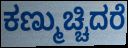
ಕಣ್ಮುಚ್ಚಿದರೆ